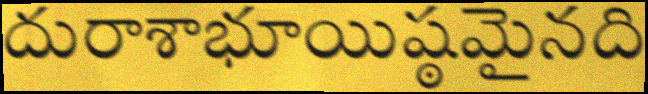
దురాశాభూయిష్ఠమైనది